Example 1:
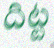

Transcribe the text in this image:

దిట్ట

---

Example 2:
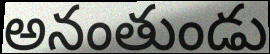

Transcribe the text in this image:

అనంతుండు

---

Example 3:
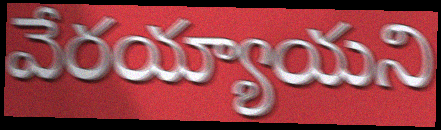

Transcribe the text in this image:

వేరయ్యాయని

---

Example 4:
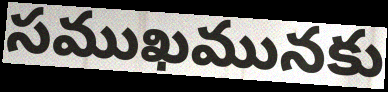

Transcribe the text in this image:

సముఖమునకు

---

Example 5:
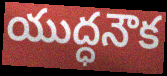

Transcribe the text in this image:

యుద్ధనౌక